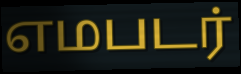
எமபடர்